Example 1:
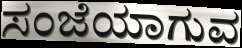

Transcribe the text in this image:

ಸಂಜೆಯಾಗುವ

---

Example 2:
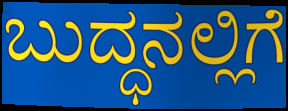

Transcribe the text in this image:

ಬುದ್ಧನಲ್ಲಿಗೆ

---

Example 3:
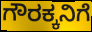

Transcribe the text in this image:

ಗೌರಕ್ಕನಿಗೆ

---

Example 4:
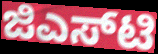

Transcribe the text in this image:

ಜಿಎಸ್‌ಟಿ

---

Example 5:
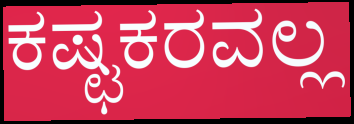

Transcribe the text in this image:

ಕಷ್ಟಕರವಲ್ಲ